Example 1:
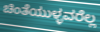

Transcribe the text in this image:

ಚಿಂತೆಯುಳ್ಳವರೆಲ್ಲ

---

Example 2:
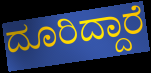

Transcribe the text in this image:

ದೂರಿದ್ದಾರೆ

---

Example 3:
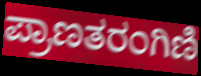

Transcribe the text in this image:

ಪ್ರಾಣತರಂಗಿಣಿ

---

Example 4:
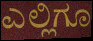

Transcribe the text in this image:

ಎಲ್ಲಿಗೂ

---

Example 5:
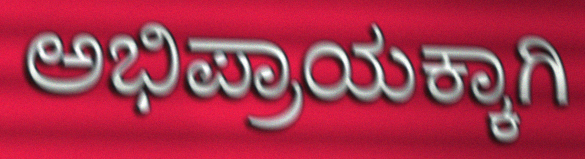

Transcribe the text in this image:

ಅಭಿಪ್ರಾಯಕ್ಕಾಗಿ